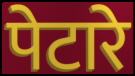
पेटारे